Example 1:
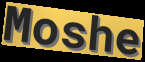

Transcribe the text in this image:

Moshe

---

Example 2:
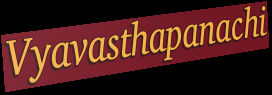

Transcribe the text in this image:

Vyavasthapanachi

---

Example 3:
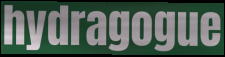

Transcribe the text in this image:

hydragogue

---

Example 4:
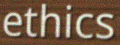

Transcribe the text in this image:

ethics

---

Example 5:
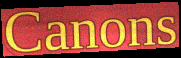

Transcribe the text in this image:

Canons